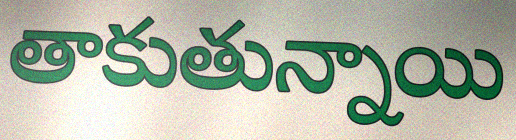
తాకుతున్నాయి